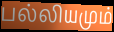
பல்லியமும்